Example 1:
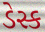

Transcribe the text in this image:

ડેસ્ક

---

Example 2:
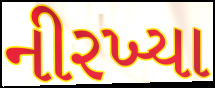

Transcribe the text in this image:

નીરખ્યા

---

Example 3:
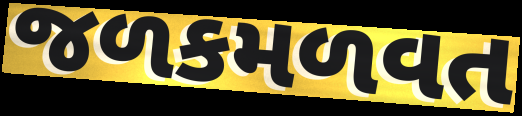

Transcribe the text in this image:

જળકમળવત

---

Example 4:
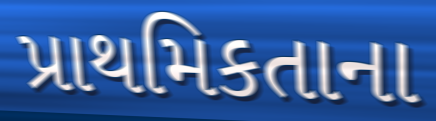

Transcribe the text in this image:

પ્રાથમિકતાના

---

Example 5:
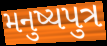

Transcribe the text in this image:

મનુષ્યપુત્ર